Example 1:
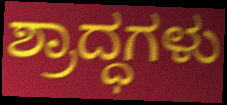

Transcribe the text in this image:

ಶ್ರಾದ್ಧಗಳು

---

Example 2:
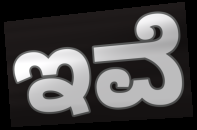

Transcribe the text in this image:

ಇವೆ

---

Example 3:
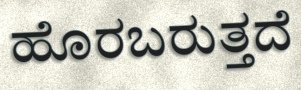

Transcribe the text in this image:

ಹೊರಬರುತ್ತದೆ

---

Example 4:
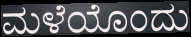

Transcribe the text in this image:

ಮಳೆಯೊಂದು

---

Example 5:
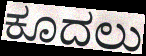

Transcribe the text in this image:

ಕೂದಲು